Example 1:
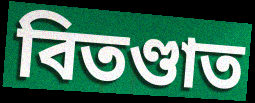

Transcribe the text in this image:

বিতণ্ডাত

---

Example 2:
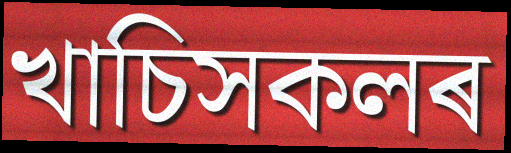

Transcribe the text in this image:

খাচিসকলৰ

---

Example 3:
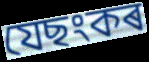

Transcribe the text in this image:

যেছংকৰ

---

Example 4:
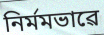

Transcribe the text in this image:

নিৰ্মমভাৱে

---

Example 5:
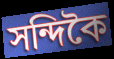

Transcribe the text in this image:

সন্দিকৈ